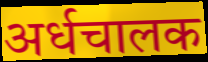
अर्धचालक